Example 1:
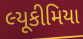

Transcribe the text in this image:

લ્યૂકીમિયા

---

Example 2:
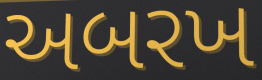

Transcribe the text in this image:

અબરખ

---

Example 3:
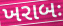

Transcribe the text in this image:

ખરાબઃ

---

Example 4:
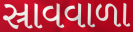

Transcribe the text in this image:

સ્રાવવાળા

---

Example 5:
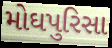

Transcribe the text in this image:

મોઘપુરિસા